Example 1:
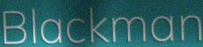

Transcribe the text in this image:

Blackman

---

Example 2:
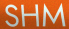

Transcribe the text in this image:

SHM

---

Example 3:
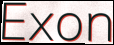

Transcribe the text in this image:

Exon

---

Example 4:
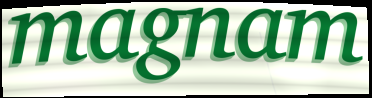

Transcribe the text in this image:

magnam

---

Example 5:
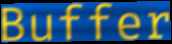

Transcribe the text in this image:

Buffer